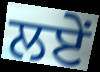
ਲਏਂ